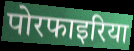
पोरफाइरिया